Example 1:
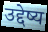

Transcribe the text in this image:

उद्देष्य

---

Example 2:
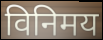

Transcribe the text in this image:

विनिमय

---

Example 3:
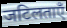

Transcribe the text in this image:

जटिलताएँ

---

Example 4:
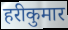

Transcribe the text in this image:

हरीकुमार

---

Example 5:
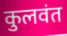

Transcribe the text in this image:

कुलवंत